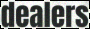
dealers